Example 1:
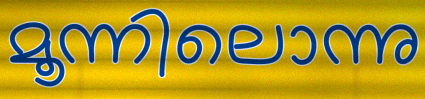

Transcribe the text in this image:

മൂന്നിലൊന്നു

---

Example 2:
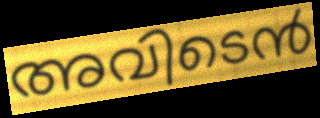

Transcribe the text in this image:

അവിടെൻ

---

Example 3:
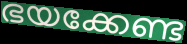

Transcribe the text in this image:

ഭയക്കേണ്ട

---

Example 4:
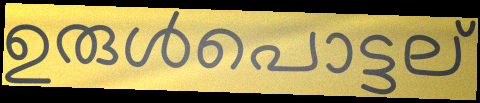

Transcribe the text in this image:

ഉരുൾപൊട്ടല്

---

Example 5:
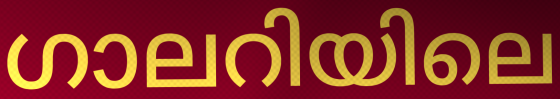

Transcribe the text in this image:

ഗാലറിയിലെ